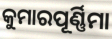
କୁମାରପୂର୍ଣ୍ଣିମା